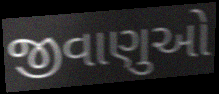
જીવાણુઓ